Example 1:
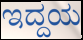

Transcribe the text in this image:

ಇದ್ದಯ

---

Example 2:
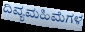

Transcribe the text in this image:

ದಿವ್ಯಮಹಿಮೆಗಳ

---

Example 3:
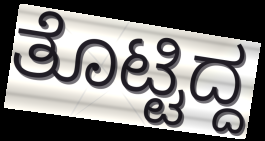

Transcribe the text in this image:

ತೊಟ್ಟಿದ್ದ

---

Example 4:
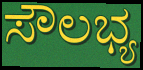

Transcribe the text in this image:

ಸೌಲಭ್ಯ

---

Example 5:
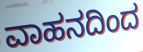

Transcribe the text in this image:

ವಾಹನದಿಂದ